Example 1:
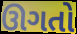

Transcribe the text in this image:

ઊગતો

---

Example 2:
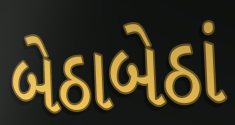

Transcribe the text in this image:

બેઠાબેઠાં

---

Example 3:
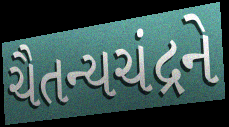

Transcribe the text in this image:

ચૈતન્યચંદ્રને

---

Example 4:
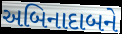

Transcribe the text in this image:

અબિનાદાબને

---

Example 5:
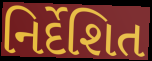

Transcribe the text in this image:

નિર્દેશિત